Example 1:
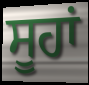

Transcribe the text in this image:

ਸੂਹਾਂ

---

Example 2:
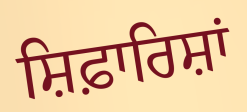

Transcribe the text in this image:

ਸ਼ਿਫ਼ਾਰਿਸ਼ਾਂ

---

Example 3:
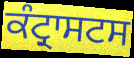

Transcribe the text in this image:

ਕੰਟ੍ਰਾਸਟਸ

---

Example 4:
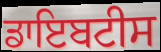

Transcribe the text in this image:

ਡਾਇਬਟੀਸ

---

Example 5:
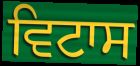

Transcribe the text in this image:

ਵਿਟਾਸ